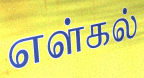
எள்கல்